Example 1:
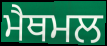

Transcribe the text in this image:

ਮੈਥਮਲ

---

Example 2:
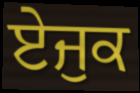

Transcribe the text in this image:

ਏਜੁਕ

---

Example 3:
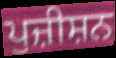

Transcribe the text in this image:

ਪੁਜ਼ੀਸ਼ਨ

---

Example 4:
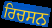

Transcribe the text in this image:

ਰਿਚਸਨ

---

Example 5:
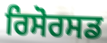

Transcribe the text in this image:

ਰਿਸੋਰਸਡ